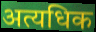
अत्यधिक